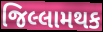
જિલ્લામથક